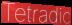
Tetradic